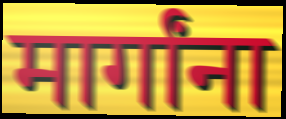
मार्गांना